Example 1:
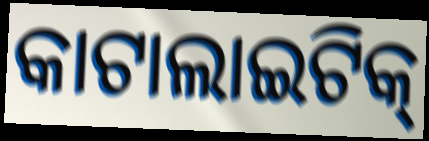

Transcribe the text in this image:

କାଟାଲାଇଟିକ୍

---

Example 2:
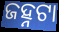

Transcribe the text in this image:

ଜହ୍ନଟା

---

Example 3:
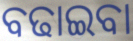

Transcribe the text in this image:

ବଢାଇବା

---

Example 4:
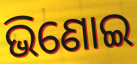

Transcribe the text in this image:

ଭିଣୋଇ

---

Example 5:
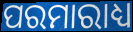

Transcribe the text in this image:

ପରମାରାଧ୍ୟ